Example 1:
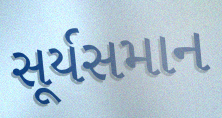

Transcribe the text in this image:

સૂર્યસમાન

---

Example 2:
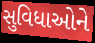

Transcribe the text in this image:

સુવિધાઓને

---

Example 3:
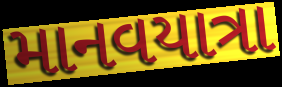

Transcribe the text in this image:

માનવયાત્રા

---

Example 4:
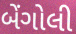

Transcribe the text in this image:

બેંગોલી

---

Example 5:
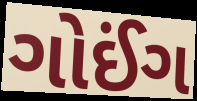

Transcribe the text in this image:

ગોઈંગ